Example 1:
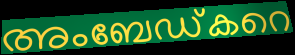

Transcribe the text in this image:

അംബേഡ്കറെ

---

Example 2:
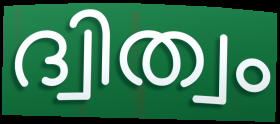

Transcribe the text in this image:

ദ്വിത്വം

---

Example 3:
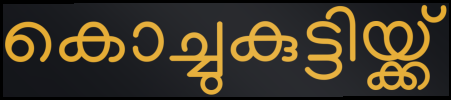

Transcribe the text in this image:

കൊച്ചുകുട്ടിയ്ക്ക്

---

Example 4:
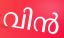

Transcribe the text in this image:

വിൻ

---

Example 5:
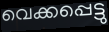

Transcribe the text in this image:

വെക്കപ്പെട്ടു